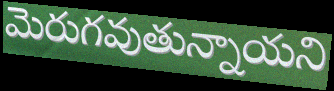
మెరుగవుతున్నాయని